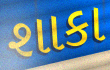
શાકા